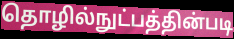
தொழில்நுட்பத்தின்படி